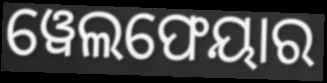
ୱେଲଫେୟାର